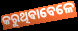
କରୁଥିଵାବେଳେ